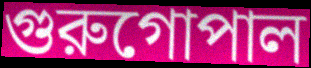
গুরুগোপাল